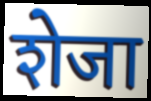
शेजा